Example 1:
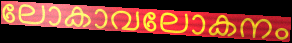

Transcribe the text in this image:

ലോകാവലോകനം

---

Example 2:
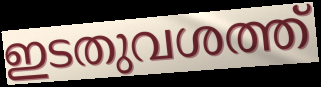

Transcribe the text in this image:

ഇടതുവശത്ത്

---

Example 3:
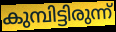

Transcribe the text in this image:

കുമ്പിട്ടിരുന്ന്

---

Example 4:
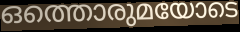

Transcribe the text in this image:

ഒത്തൊരുമയോടെ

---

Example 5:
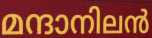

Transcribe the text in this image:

മന്ദാനിലൻ